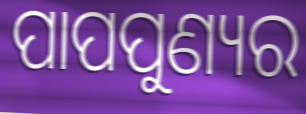
ପାପପୁଣ୍ୟର